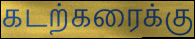
கடற்கரைக்கு